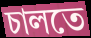
চালতে